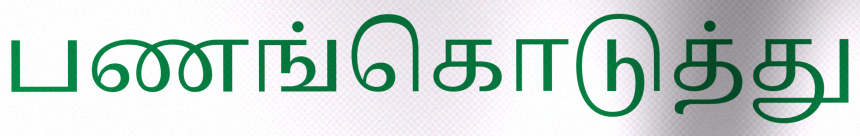
பணங்கொடுத்து